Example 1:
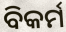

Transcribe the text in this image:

ବିକର୍ମ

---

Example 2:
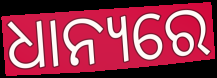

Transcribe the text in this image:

ଧାନ୍ୟରେ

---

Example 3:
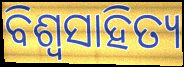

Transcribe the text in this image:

ବିଶ୍ଵସାହିତ୍ୟ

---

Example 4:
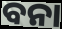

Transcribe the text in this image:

ବନା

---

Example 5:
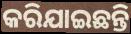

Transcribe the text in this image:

କରିଯାଇଛନ୍ତି